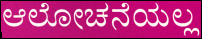
ಆಲೋಚನೆಯಲ್ಲ